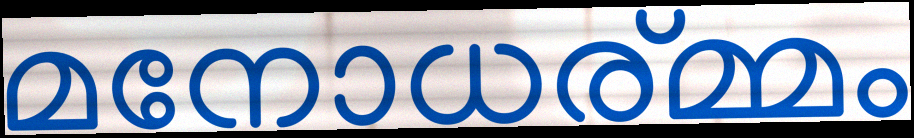
മനോധര്മ്മം